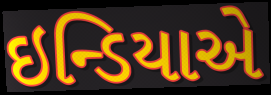
ઇન્ડિયાએ